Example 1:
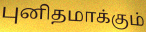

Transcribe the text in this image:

புனிதமாக்கும்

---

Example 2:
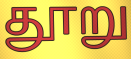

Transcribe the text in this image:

தூறு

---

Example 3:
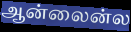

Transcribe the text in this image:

ஆன்லைன்ல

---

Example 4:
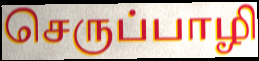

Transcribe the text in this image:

செருப்பாழி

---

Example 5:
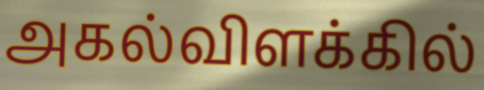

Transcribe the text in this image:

அகல்விளக்கில்